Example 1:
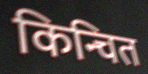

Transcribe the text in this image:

किन्चित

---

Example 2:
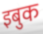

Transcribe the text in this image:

इबुक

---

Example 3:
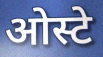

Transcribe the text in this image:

ओस्टे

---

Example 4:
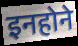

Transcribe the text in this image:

इनहोने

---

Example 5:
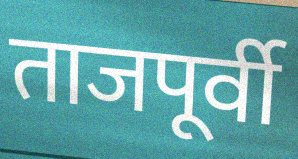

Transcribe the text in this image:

ताजपूर्वी